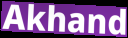
Akhand